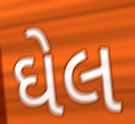
ઘેલ